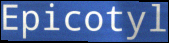
Epicotyl